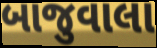
બાજુવાલા